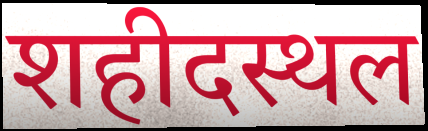
शहीदस्थल